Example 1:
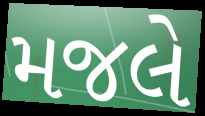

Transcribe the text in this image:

મજલે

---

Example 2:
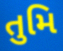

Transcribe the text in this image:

તુમિ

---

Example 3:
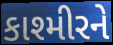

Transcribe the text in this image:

કાશ્મીરને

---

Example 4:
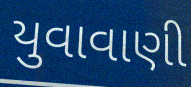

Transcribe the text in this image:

યુવાવાણી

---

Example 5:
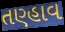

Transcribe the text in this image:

તણ્હાવ